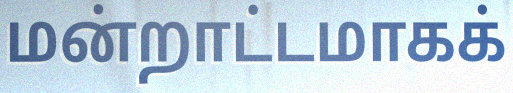
மன்றாட்டமாகக்